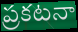
ప్రకటనా